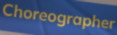
Choreographer